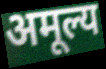
अमूल्य